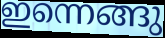
ഇന്നെങ്ങു